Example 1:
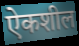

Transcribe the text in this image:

ऐकशील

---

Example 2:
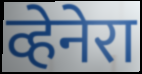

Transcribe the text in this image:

व्हेनेरा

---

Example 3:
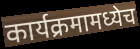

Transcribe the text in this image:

कार्यक्रमामध्येच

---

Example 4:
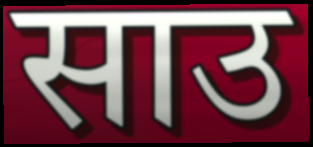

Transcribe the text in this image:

साउ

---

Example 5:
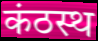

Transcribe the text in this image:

कंठस्थ